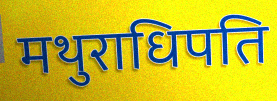
मथुराधिपति